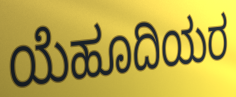
ಯೆಹೂದಿಯರ